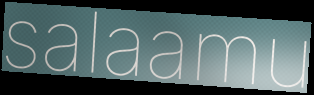
salaamu